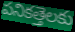
పనికత్తెలకు